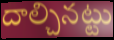
దాల్చినట్టు